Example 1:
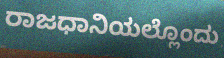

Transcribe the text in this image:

ರಾಜಧಾನಿಯಲ್ಲೊಂದು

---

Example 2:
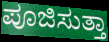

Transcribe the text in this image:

ಪೂಜಿಸುತ್ತಾ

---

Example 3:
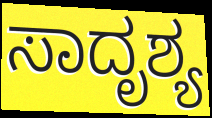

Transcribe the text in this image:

ಸಾದೃಶ್ಯ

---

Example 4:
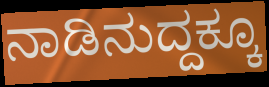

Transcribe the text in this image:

ನಾಡಿನುದ್ದಕ್ಕೂ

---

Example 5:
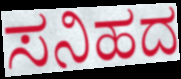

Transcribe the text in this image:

ಸನಿಹದ